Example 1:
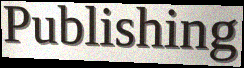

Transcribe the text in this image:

Publishing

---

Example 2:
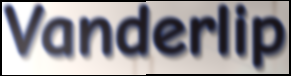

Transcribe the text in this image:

Vanderlip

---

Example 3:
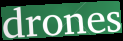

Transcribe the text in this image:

drones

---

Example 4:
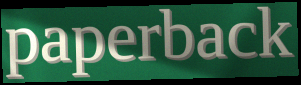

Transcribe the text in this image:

paperback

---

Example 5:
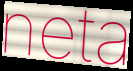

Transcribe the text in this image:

neta